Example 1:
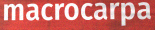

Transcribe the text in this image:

macrocarpa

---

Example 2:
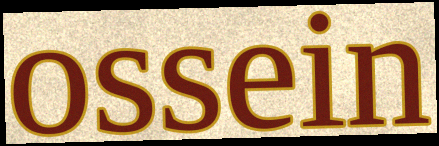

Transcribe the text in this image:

ossein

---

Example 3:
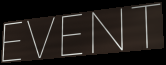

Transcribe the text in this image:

EVENT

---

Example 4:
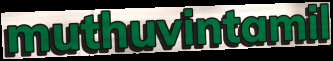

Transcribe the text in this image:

muthuvintamil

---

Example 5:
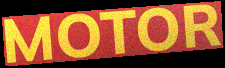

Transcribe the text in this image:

MOTOR